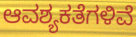
ಆವಶ್ಯಕತೆಗಳಿವೆ